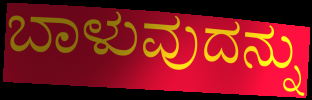
ಬಾಳುವುದನ್ನು